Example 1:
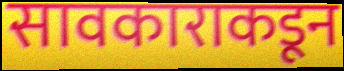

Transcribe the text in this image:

सावकाराकडून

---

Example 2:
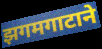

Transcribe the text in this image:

झगमगाटाने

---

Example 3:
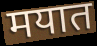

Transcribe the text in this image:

मयात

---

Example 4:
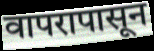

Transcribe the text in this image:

वापरापासून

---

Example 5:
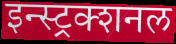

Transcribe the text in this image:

इन्स्ट्रक्शनल